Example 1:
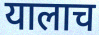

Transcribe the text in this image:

यालाच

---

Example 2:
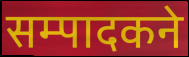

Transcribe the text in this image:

सम्पादकने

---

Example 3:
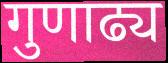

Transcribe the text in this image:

गुणाढ्य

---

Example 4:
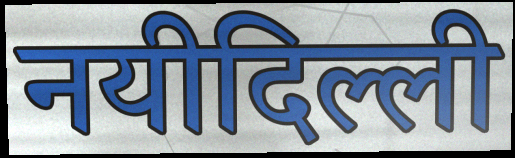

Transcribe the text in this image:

नयीदिल्ली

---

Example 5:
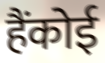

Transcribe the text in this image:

हैंकोई